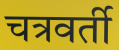
चत्रवर्ती